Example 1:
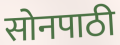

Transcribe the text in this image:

सोनपाठी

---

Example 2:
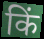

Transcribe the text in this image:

किं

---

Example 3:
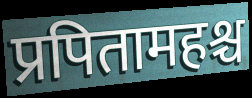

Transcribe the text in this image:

प्रपितामहश्च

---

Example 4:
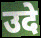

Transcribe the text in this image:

उदे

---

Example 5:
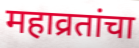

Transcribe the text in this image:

महाव्रतांचा